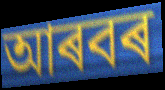
আৰবৰ